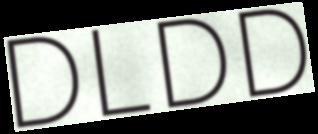
DLDD